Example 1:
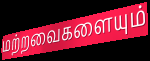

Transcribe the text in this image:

மற்றவைகளையும்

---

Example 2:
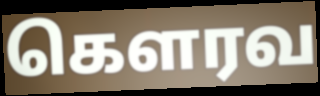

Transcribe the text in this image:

கெளரவ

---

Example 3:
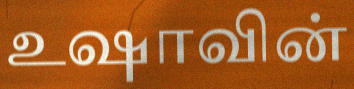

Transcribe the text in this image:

உஷாவின்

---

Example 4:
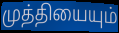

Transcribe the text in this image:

முத்தியையும்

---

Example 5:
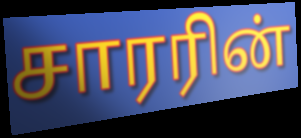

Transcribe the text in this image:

சாரரின்